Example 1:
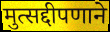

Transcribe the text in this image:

मुत्सद्दीपणाने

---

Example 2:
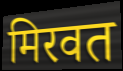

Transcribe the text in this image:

मिरवत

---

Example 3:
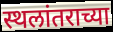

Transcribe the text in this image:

स्थलांतराच्या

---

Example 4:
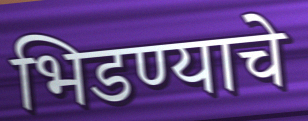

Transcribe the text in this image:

भिडण्याचे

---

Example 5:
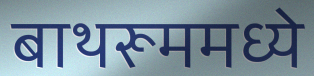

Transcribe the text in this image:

बाथरूममध्ये